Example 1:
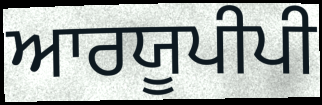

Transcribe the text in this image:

ਆਰਯੂਪੀਪੀ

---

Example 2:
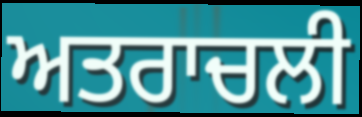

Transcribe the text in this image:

ਅਤਰਾਚਲੀ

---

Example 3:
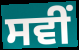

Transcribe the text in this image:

ਸਵੀਂ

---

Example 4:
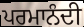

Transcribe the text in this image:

ਪਰਮਾਨੰਦੀ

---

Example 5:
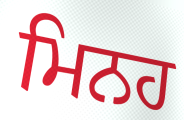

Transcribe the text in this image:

ਮਿਨਹ